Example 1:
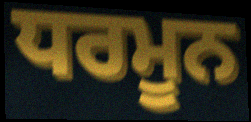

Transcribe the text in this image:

ਧਰਮੂਨ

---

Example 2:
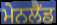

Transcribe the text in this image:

ਮੇਨਲੈਂਡ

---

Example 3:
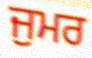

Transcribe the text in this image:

ਜੁਮਰ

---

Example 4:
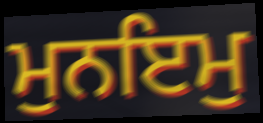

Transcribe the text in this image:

ਮੁਨਇਮੁ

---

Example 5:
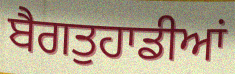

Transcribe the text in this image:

ਬੈਗਤੁਹਾਡੀਆਂ